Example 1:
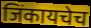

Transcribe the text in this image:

जिंकायचेच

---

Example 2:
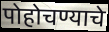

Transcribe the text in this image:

पोहोचण्याचे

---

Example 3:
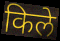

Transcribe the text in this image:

किले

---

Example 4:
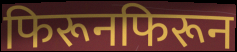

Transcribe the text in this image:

फिरूनफिरून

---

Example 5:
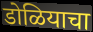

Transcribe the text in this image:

डोळियाचा